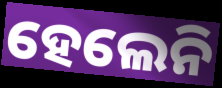
ହେଲେନି